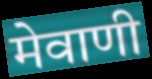
मेवाणी